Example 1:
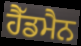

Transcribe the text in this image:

ਹੈੱਡਮੈਨ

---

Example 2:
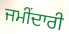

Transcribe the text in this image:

ਜਮੀਂਦਾਰੀ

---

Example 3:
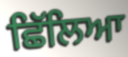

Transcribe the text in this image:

ਛਿੱਲਿਆ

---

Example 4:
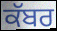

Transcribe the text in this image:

ਕੱਬਰ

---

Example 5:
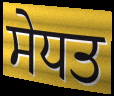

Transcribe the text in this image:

ਸੇਧਤ